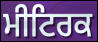
ਮੀਟਿਰਕ